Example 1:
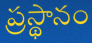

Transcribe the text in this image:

ప్రస్థానం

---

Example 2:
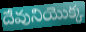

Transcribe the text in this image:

దేవునియొక్క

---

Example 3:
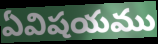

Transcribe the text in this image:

ఏవిషయము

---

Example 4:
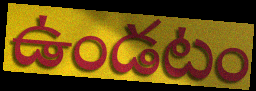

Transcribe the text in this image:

ఉండటం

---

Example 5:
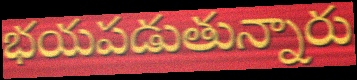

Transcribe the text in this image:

భయపడుతున్నారు